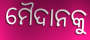
ମୈଦାନକୁ